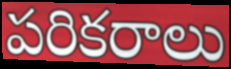
పరికరాలు